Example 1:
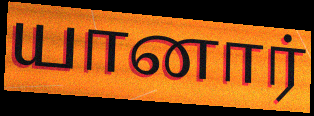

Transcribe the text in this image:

யானார்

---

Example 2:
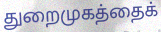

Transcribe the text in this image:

துறைமுகத்தைக்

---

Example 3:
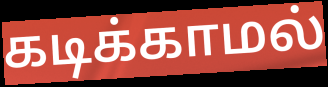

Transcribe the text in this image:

கடிக்காமல்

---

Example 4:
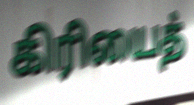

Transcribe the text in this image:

கிரியைத்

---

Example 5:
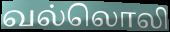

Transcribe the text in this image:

வல்லொலி